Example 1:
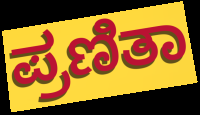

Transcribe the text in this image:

ಪ್ರಣಿತಾ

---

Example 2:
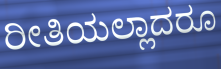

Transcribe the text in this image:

ರೀತಿಯಲ್ಲಾದರೂ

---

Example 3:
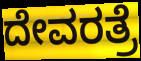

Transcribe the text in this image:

ದೇವರತ್ರೆ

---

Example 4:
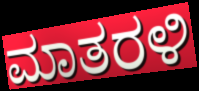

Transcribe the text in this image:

ಮಾತರಳಿ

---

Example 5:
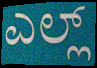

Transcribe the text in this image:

ಎಲ್ಲ್